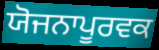
ਯੋਜਨਾਪੂਰਵਕ